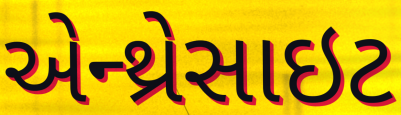
એન્થ્રેસાઇટ